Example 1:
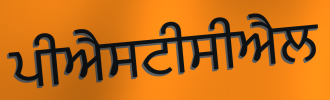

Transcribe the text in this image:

ਪੀਐਸਟੀਸੀਐਲ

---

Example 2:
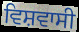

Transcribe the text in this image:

ਵਿਸ਼ਵਾਸੀ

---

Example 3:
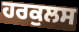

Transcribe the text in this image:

ਹਰਕੁਲਸ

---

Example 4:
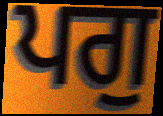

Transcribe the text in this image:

ਪਗੁ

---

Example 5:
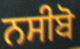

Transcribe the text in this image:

ਨਸੀਬੋ